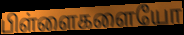
பிள்ளைகளையோ